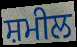
ਸ਼ਮੀਲ